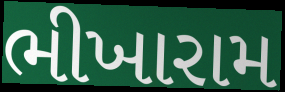
ભીખારામ